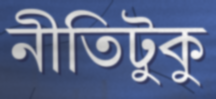
নীতিটুকু